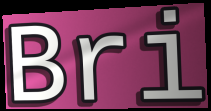
Bri